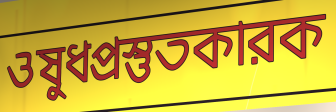
ওষুধপ্রস্তুতকারক